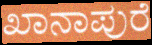
ಖಾನಾಪುರೆ